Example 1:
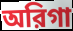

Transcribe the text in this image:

অরিগা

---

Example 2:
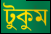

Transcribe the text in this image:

টুকুম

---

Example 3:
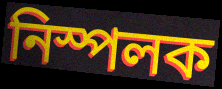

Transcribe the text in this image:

নিস্পলক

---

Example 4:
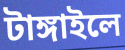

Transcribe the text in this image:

টাঙ্গাইলে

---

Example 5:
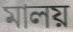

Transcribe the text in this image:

মালয়